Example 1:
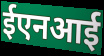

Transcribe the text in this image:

ईएनआई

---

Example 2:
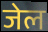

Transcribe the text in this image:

जेल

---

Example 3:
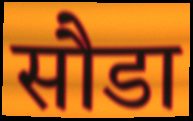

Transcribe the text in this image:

सौडा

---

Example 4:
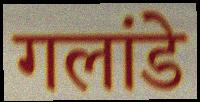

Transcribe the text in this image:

गलांडे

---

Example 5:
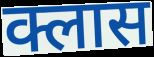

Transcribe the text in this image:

क्लास